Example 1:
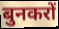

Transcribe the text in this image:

बुनकरों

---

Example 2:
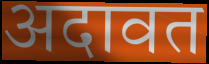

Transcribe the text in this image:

अदावत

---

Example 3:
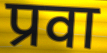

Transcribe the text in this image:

प्रवा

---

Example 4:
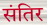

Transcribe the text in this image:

संतिर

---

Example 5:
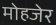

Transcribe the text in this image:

मोहजेर